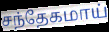
சந்தேகமாய்